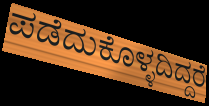
ಪಡೆದುಕೊಳ್ಳದಿದ್ದರೆ